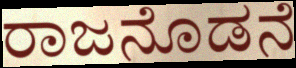
ರಾಜನೊಡನೆ